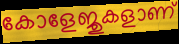
കോളേജുകളാണ്